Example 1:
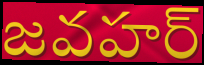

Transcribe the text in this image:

జవహర్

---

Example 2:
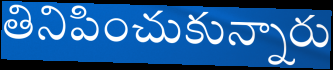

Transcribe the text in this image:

తినిపించుకున్నారు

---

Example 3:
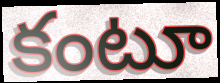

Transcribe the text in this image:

కంటూ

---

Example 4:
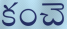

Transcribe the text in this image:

కంచె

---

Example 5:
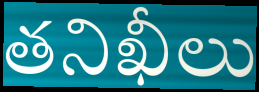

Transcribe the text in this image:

తనిఖీలు